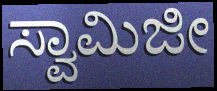
ಸ್ವಾಮಿಜೀ